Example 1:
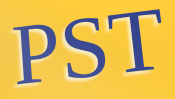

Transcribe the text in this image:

PST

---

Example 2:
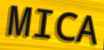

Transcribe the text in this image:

MICA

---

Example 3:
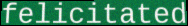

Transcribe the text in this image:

felicitated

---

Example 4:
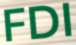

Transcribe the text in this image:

FDI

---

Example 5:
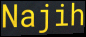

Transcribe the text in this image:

Najih